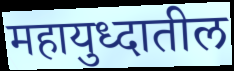
महायुध्दातील